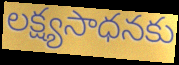
లక్ష్యసాధనకు